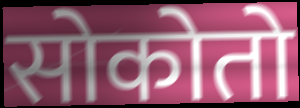
सोकोतो